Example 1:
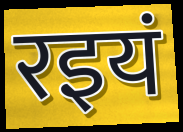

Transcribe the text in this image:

रइयं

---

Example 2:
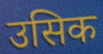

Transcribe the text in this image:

उसिक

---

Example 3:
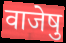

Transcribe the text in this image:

वाजेषु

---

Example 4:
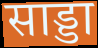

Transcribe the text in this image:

साड्डा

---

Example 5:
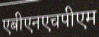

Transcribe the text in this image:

एबीएनएचपीएम